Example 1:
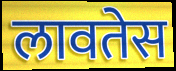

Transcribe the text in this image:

लावतेस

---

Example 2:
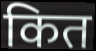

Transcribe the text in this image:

कित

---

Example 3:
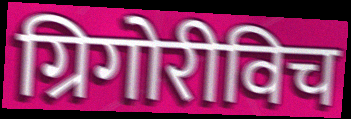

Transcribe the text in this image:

ग्रिगोरीविच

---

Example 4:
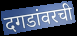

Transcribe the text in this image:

दगडांवरची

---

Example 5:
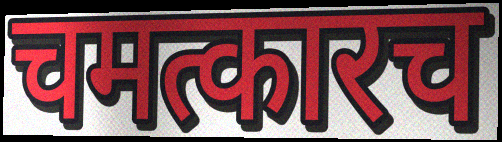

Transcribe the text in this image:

चमत्कारच